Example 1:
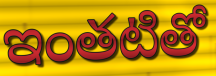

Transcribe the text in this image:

ఇంతటితో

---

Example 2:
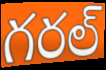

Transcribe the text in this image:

గరల్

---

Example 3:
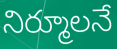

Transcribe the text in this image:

నిర్మూలనే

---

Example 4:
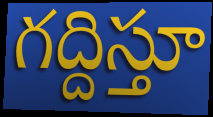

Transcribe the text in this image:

గద్దిస్తూ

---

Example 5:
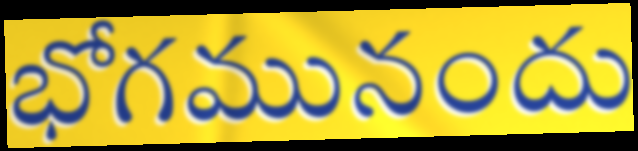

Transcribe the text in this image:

భోగమునందు